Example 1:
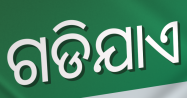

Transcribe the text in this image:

ଗଡିଯାଏ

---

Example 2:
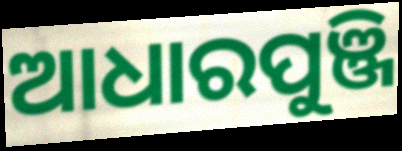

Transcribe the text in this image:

ଆଧାରପୁଞ୍ଜି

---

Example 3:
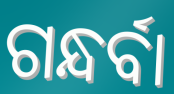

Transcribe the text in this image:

ଗନ୍ଧର୍ବା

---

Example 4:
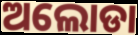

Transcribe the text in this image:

ଅଲୋଡା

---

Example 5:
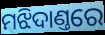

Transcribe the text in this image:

ମଝିଦାଣ୍ତରେ